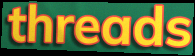
threads